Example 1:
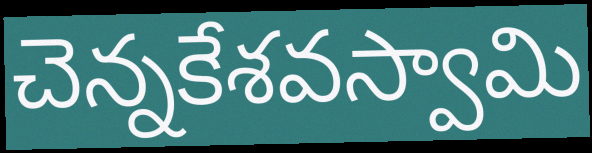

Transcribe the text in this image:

చెన్నకేశవస్వామి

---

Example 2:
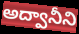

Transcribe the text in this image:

అద్వానీని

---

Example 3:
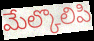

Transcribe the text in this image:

మేల్కొలిపి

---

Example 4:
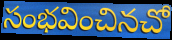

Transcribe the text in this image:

సంభవించినచో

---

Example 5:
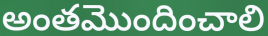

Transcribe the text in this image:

అంతమొందించాలి